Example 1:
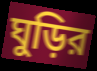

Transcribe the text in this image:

ঘুড়ির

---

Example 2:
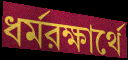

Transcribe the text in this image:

ধর্মরক্ষার্থে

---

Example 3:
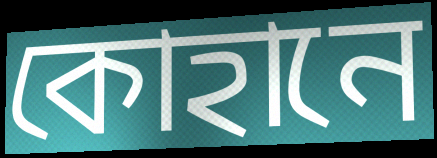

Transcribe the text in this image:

কোহানে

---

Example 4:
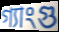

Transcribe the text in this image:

গ্যাংগু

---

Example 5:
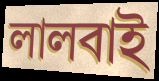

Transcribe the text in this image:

লালবাই